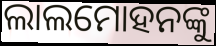
ଲାଲମୋହନଙ୍କୁ